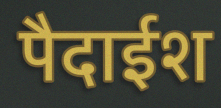
पैदाईश